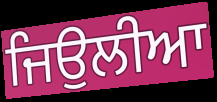
ਜਿਉਲੀਆ